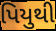
પિયુથી